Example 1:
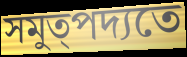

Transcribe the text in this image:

সমুত্পদ্যতে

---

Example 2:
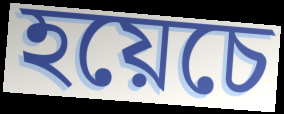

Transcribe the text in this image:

হয়েচে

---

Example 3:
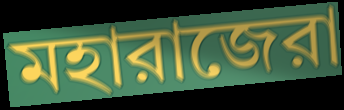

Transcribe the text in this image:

মহারাজেরা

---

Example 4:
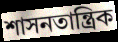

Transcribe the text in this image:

শাসনতান্ত্রিক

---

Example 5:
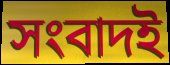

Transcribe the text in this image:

সংবাদই